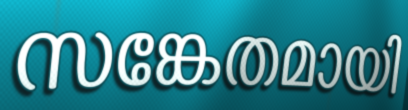
സങ്കേതമായി